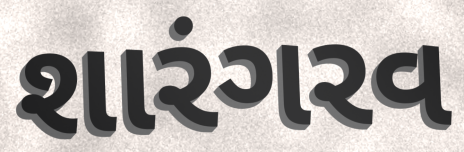
શારંગરવ